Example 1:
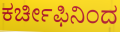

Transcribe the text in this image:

ಕರ್ಚೀಫಿನಿಂದ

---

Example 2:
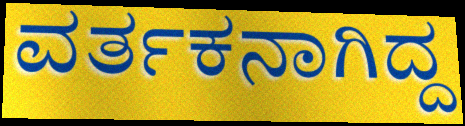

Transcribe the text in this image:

ವರ್ತಕನಾಗಿದ್ದ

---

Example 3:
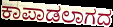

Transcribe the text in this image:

ಕಾಪಾಡಲಾಗದ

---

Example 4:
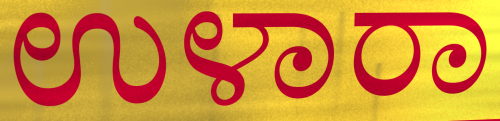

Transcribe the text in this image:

ಉಳಾರಾ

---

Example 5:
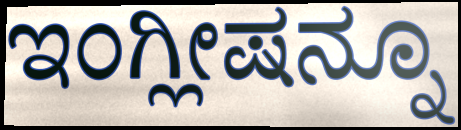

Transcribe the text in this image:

ಇಂಗ್ಲೀಷನ್ನೂ